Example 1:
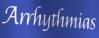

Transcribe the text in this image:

Arrhythmias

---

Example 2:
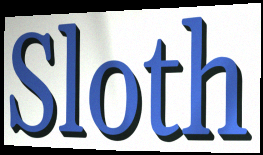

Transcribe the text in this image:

Sloth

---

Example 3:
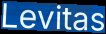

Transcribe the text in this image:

Levitas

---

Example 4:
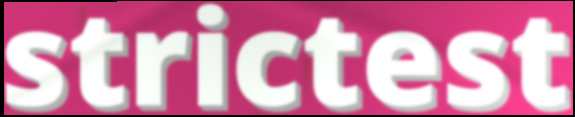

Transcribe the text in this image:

strictest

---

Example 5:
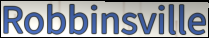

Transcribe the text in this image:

Robbinsville